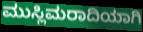
ಮುಸ್ಲಿಮರಾದಿಯಾಗಿ